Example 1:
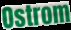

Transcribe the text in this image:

Ostrom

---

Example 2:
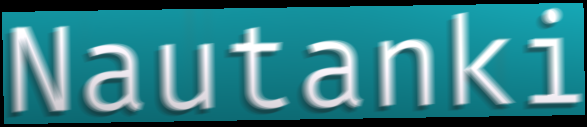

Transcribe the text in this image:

Nautanki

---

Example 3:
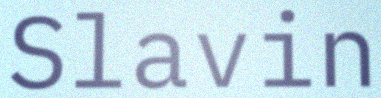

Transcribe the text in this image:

Slavin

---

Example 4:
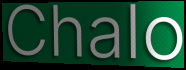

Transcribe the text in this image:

Chalo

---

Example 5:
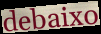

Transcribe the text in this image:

debaixo